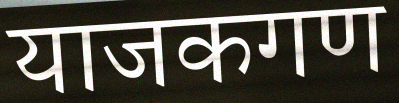
याजकगण